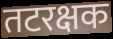
तटरक्षक